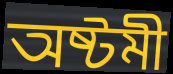
অষ্টমী